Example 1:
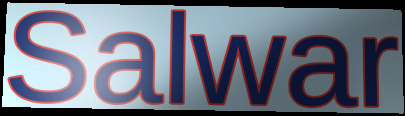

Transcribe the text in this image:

Salwar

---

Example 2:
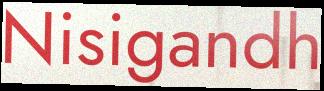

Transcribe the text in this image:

Nisigandh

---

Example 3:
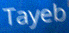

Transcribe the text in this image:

Tayeb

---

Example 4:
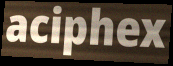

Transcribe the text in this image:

aciphex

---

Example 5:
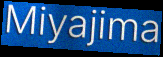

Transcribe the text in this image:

Miyajima